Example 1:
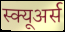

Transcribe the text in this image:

स्क्यूअर्स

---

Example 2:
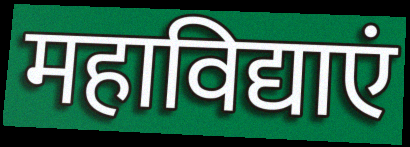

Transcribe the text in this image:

महाविद्याएं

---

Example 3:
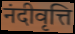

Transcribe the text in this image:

नंदीवृत्ति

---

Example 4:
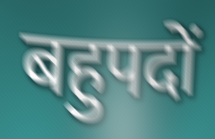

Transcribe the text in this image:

बहुपदों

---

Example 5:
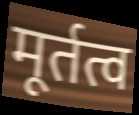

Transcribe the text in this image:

मूर्तत्व